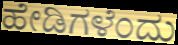
ಹೇಡಿಗಳೆಂದು